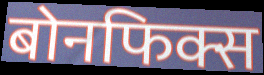
बोनफिक्स